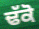
ਢੱਕੋ